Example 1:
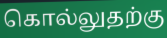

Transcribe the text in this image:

கொல்லுதற்கு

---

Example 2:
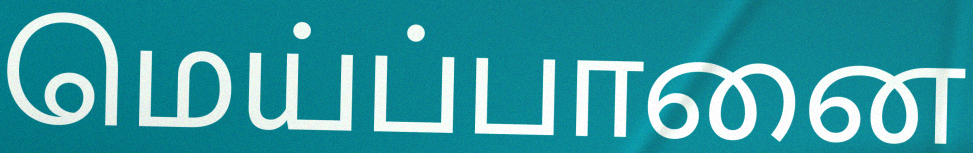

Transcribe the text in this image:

மெய்ப்பானை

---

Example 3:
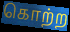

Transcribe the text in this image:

கொற்ற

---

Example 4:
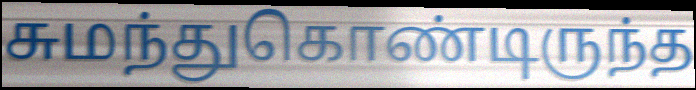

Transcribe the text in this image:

சுமந்துகொண்டிருந்த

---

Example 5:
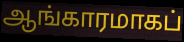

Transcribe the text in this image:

ஆங்காரமாகப்